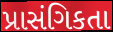
પ્રાસંગિકતા